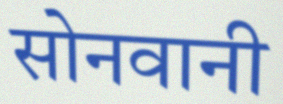
सोनवानी